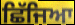
ਛਿੱਜਿਆ